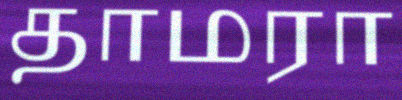
தாமரா